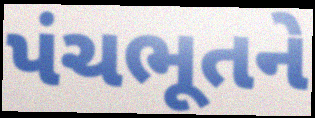
પંચભૂતને